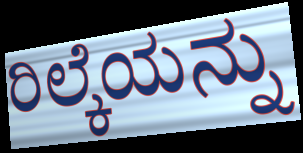
ರಿಲ್ಕೆಯನ್ನು